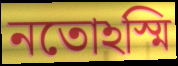
নতোঽস্মি